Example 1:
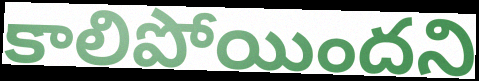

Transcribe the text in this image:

కాలిపోయిందని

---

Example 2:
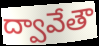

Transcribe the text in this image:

ద్వావేతౌ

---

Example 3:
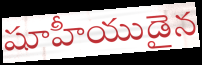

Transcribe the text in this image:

షూహీయుడైన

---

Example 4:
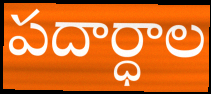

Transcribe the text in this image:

పదార్ధాల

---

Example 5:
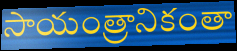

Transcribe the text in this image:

సాయంత్రానికంతా